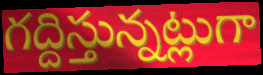
గద్దిస్తున్నట్లుగా